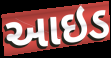
આઇડ